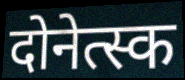
दोनेत्स्क